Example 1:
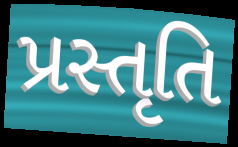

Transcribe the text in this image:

પ્રસ્તૃતિ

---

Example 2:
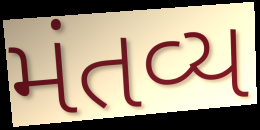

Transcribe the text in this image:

મંતવ્ય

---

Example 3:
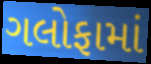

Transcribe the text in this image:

ગલોફામાં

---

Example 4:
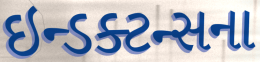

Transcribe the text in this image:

ઇન્ડક્ટન્સના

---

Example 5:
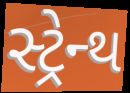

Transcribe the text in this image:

સ્ટ્રેન્થ